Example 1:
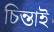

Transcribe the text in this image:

চিন্তাই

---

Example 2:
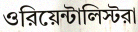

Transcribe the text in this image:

ওরিয়েন্টালিস্টরা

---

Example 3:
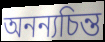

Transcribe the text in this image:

অনন্যচিন্ত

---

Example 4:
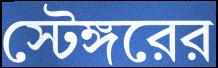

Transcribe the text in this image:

স্টেঙ্গরের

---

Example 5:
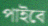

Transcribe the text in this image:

পাইবে